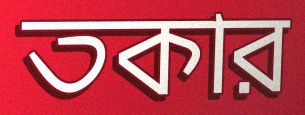
তকার